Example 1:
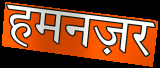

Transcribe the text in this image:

हमनज़र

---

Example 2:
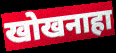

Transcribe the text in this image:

खोखनाहा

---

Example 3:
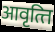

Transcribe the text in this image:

आवृत्‍ति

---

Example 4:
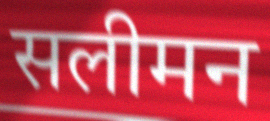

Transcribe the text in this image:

सलीमन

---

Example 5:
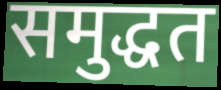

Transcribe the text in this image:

समुद्धत